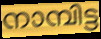
നാമ്പിട്ട